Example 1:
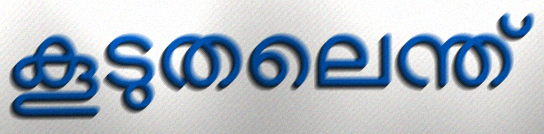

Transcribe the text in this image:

കൂടുതലെന്ത്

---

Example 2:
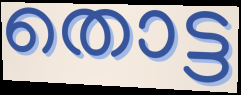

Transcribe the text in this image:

തൊട്ട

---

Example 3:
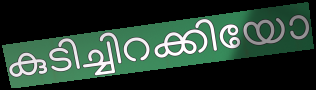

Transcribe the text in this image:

കുടിച്ചിറക്കിയോ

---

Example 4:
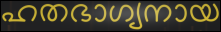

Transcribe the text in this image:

ഹതഭാഗ്യനായ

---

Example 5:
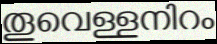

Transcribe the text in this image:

തൂവെള്ളനിറം